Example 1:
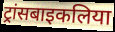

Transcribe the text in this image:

ट्रांसबाइकलिया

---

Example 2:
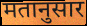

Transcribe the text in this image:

मतानुसार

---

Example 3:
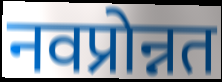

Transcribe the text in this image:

नवप्रोन्नत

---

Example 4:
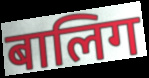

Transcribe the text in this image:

बालिग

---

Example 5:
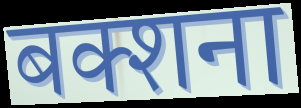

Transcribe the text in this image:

बक्शना